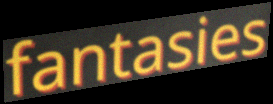
fantasies